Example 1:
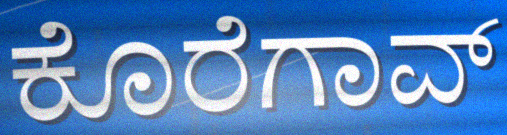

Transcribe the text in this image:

ಕೊರೆಗಾವ್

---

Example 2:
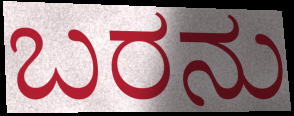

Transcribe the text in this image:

ಬರನು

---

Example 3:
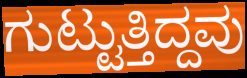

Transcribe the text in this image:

ಗುಟ್ಟುತ್ತಿದ್ದವು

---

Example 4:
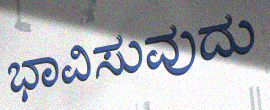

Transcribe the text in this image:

ಭಾವಿಸುವುದು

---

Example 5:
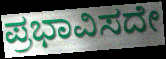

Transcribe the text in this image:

ಪ್ರಭಾವಿಸದೇ